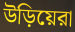
উড়িয়েরা